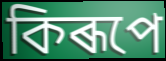
কিৰূপে